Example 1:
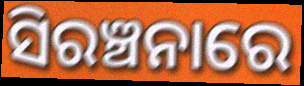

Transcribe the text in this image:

ସିରଞ୍ଚନାରେ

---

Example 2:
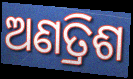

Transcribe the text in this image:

ଅଣତ୍ରିଶ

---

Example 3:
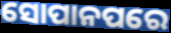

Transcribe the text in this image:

ସୋପାନପରେ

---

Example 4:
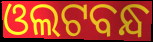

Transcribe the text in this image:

ଓଲଟବନ୍ଧ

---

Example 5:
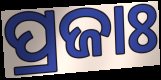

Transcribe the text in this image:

ପ୍ରଜାଃ